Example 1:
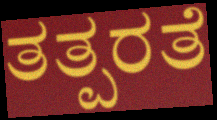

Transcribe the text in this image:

ತತ್ಪರತೆ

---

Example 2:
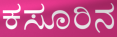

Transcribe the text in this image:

ಕಸೂರಿನ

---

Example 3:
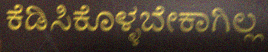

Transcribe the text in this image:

ಕೆಡಿಸಿಕೊಳ್ಳಬೇಕಾಗಿಲ್ಲ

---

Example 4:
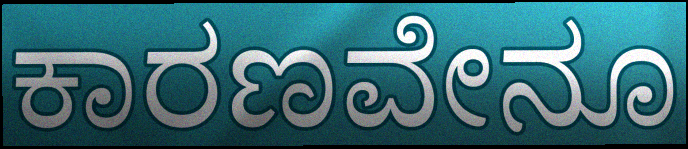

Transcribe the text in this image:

ಕಾರಣವೇನೂ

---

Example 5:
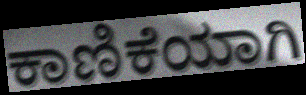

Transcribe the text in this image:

ಕಾಣಿಕೆಯಾಗಿ